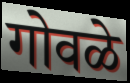
गोवळे